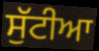
ਸੁੱਟੀਆ